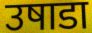
उषाडा